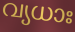
വ്യധാഃ